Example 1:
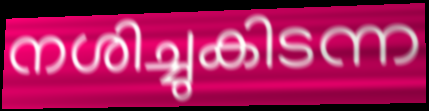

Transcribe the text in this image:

നശിച്ചുകിടന്ന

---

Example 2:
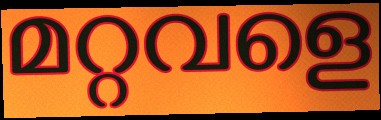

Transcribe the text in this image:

മറ്റവളെ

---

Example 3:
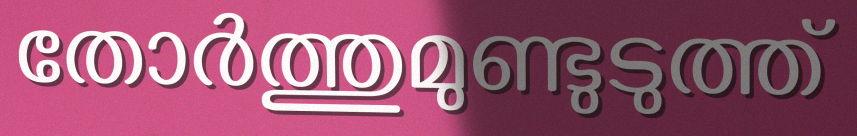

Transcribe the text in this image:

തോർത്തുമുണ്ടുടുത്ത്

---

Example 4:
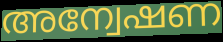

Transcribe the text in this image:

അന്വേഷണ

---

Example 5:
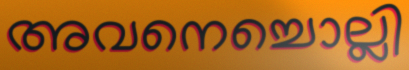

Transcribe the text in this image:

അവനെച്ചൊല്ലി